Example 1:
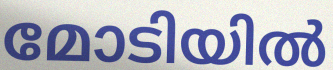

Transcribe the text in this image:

മോടിയിൽ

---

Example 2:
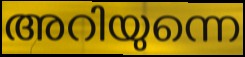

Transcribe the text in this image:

അറിയുന്നെ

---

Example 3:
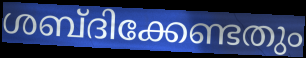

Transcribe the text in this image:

ശബ്ദിക്കേണ്ടതും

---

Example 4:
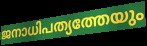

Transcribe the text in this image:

ജനാധിപത്യത്തേയും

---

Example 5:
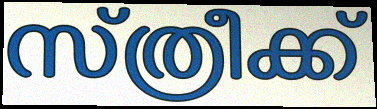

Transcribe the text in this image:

സ്‌ത്രീക്ക്